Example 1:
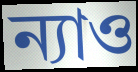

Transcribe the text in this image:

ন্যাও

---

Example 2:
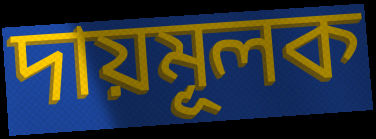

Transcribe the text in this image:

দায়মূলক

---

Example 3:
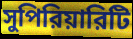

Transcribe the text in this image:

সুপিরিয়ারিটি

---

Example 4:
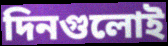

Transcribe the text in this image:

দিনগুলোই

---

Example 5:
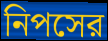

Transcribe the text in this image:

নিপসের